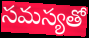
సమస్యతో